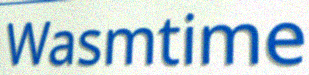
Wasmtime